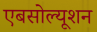
एबसोल्यूशन